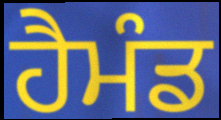
ਹੈਮੰਡ